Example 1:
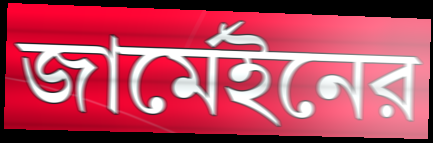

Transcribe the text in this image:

জার্মেইনের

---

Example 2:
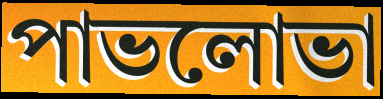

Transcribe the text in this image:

পাভলোভা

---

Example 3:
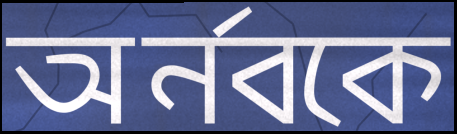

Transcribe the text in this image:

অর্নবকে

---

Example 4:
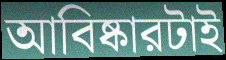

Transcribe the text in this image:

আবিষ্কারটাই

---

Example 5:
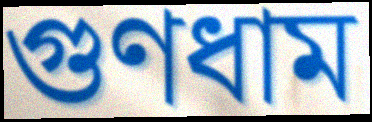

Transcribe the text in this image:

গুণধাম